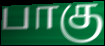
பாகு